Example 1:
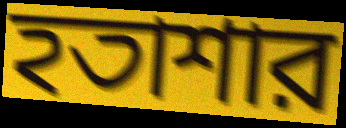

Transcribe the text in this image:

হতাশার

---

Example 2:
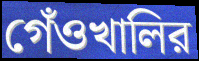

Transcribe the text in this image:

গেঁওখালির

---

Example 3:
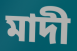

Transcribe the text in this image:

মাদী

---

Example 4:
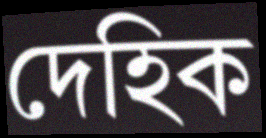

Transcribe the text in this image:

দেহিক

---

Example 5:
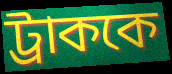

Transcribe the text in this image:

ট্রাককে